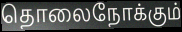
தொலைநோக்கும்